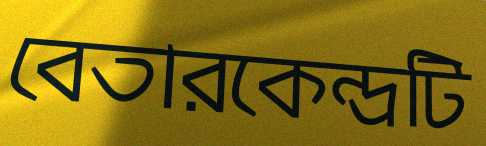
বেতারকেন্দ্রটি